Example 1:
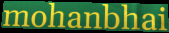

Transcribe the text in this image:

mohanbhai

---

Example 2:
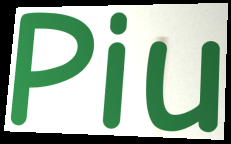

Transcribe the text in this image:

Piu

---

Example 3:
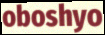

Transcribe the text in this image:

oboshyo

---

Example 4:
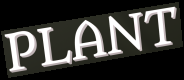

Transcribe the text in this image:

PLANT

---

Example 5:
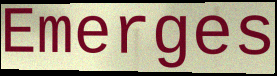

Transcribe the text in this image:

Emerges